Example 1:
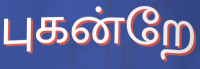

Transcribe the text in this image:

புகன்றே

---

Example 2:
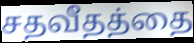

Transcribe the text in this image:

சதவீதத்தை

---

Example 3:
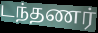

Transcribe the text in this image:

டந்தணர்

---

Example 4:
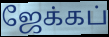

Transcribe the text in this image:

ஜேக்கப்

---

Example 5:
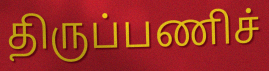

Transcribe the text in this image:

திருப்பணிச்